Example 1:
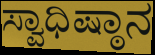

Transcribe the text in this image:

ಸ್ವಾಧಿಷ್ಠಾನ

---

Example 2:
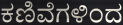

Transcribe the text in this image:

ಕಣಿವೆಗಳಿಂದ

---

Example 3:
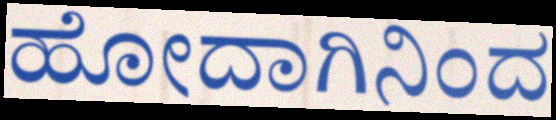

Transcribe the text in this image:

ಹೋದಾಗಿನಿಂದ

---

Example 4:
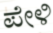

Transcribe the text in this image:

ಪೇಳಿ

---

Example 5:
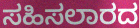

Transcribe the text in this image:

ಸಹಿಸಲಾರದ